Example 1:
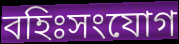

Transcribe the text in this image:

বহিঃসংযোগ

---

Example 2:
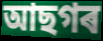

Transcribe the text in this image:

আছগৰ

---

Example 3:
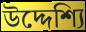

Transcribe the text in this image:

উদ্দেশ্যি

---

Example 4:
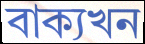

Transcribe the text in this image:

বাক্যখন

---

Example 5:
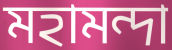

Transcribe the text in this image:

মহামন্দা